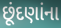
છૂંદણાંના